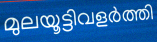
മുലയൂട്ടിവളർത്തി